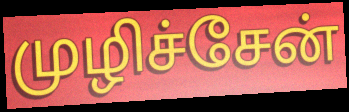
முழிச்சேன்